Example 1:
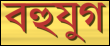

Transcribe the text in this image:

বহুযুগ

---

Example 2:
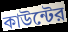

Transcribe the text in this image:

কাউন্টের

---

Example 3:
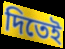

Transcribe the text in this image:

দিতেই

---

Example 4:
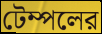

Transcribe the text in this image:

টেম্পলের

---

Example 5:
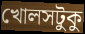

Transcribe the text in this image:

খোলসটুকু